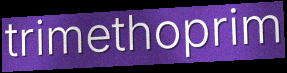
trimethoprim